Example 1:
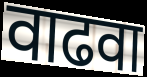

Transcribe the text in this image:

वाढवा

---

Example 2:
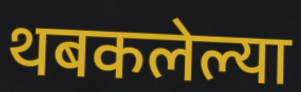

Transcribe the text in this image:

थबकलेल्या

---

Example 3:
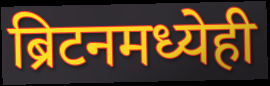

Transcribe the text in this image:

ब्रिटनमध्येही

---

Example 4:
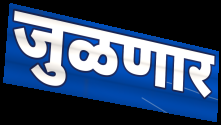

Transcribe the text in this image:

जुळणार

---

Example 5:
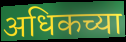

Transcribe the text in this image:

अधिकच्या